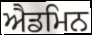
ਐਡਮਿਨ